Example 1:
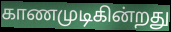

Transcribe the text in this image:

காணமுடிகின்றது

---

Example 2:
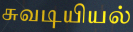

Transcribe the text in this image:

சுவடியியல்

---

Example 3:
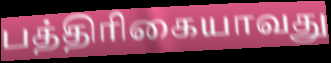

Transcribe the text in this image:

பத்திரிகையாவது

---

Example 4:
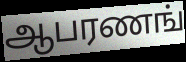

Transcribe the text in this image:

ஆபரணங்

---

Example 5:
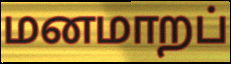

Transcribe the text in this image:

மனமாறப்